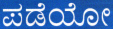
ಪಡೆಯೋ